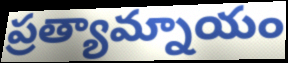
ప్రత్యామ్నాయం